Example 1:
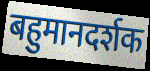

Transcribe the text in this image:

बहुमानदर्शक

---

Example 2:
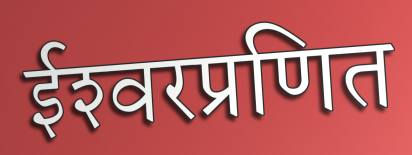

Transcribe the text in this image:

ईश्वरप्रणित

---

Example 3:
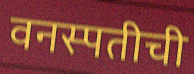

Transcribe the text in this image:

वनस्पतीची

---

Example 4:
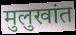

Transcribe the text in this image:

मुलुखांत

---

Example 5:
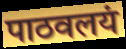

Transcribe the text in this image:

पाठवलयं